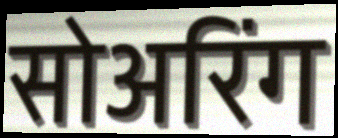
सोअरिंग